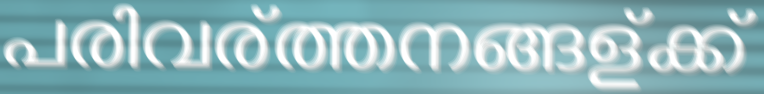
പരിവര്ത്തനങ്ങള്ക്ക്